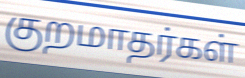
குறமாதர்கள்